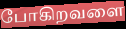
போகிறவளை